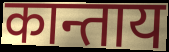
कान्ताय